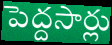
పెద్దసార్లు